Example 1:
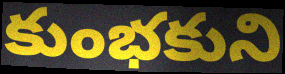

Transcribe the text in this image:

కుంభకుని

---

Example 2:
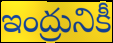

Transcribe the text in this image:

ఇంద్రునికీ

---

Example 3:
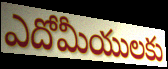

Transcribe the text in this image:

ఎదోమీయులకు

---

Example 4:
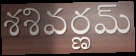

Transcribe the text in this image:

శశివర్ణమ్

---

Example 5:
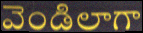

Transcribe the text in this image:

వెండిలాగా